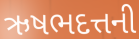
ઋષભદત્તની